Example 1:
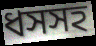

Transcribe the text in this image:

ধসসহ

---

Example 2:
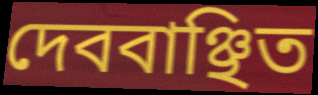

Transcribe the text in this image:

দেববাঞ্ছিত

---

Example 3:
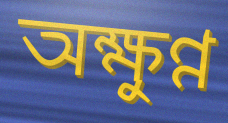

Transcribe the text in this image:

অক্ষুণ্ন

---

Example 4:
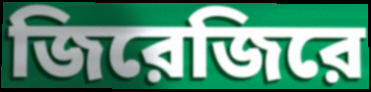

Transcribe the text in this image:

জিরেজিরে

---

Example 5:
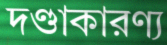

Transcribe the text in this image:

দণ্ডাকারণ্য